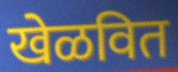
खेळवित